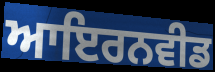
ਆਇਰਨਵੀਡ